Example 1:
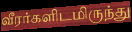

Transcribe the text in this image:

வீரர்களிடமிருந்து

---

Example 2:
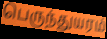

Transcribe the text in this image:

பெருந்துயரம்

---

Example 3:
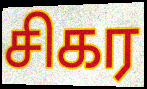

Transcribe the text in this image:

சிகர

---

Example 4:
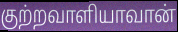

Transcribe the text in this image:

குற்றவாளியாவான்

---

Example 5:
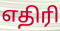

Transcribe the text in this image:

எதிரி